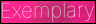
Exemplary